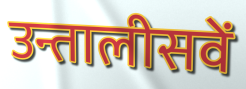
उन्तालीसवें